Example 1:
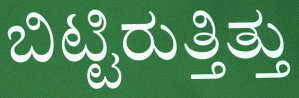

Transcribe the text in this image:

ಬಿಟ್ಟಿರುತ್ತಿತ್ತು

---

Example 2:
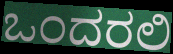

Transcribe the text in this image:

ಒಂದರಲಿ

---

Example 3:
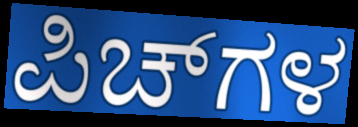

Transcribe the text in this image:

ಪಿಚ್‌ಗಳ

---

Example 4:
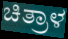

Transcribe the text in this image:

ಚಿತ್ರಾಳ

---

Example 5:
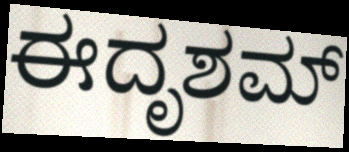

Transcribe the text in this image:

ಈದೃಶಮ್